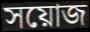
সয়োজ